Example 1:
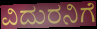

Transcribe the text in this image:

ವಿದುರನಿಗೆ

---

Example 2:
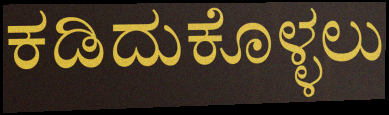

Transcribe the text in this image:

ಕಡಿದುಕೊಳ್ಳಲು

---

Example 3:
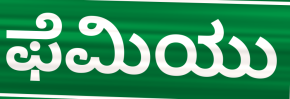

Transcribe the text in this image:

ಫೆಮಿಯು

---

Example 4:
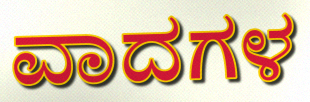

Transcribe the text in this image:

ವಾದಗಳ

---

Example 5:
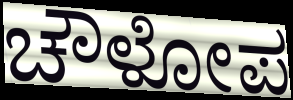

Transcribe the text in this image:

ಚೌಳೋಪ